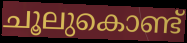
ചൂലുകൊണ്ട്